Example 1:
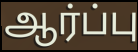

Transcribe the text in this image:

ஆர்ப்பு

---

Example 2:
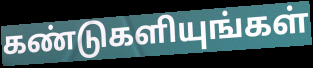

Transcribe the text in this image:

கண்டுகளியுங்கள்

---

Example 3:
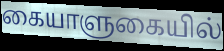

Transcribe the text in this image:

கையாளுகையில்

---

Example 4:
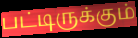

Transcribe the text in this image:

பட்டிருக்கும்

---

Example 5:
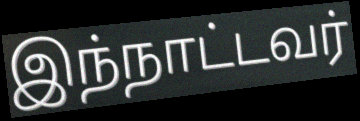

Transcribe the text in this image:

இந்நாட்டவர்